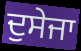
ਦੁਸੇਜਾ